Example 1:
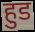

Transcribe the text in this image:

हुड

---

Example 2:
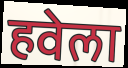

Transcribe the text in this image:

हवेला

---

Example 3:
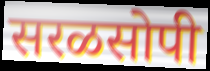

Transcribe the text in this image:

सरळसोपी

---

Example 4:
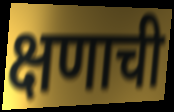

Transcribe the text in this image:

क्षणाची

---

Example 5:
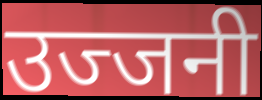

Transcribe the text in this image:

उज्जनी